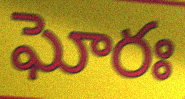
ఘోరః